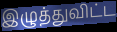
இழுத்துவிட்ட